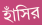
হাঁসির